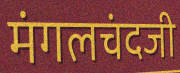
मंगलचंदजी